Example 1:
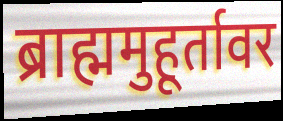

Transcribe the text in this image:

ब्राह्ममुहूर्तावर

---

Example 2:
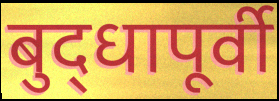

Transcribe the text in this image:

बुद्धापूर्वी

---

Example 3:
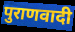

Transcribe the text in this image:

पुराणवादी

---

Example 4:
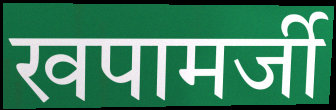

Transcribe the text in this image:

खपामर्जी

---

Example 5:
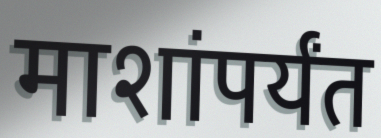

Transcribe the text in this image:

माशांपर्यंत